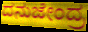
ದನುಜೇಂದ್ರ